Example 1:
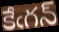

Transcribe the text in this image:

కేఁగన్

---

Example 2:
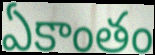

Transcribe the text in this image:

ఏకాంతం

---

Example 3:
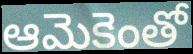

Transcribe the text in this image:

ఆమెకెంతో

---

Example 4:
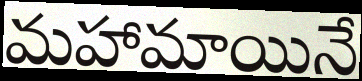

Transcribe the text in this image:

మహామాయినే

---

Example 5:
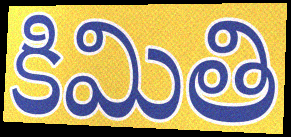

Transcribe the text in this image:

కిమితి